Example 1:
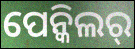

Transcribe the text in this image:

ପେନ୍କିଲର୍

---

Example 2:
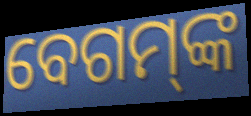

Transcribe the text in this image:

ବେଗମ୍‌ଙ୍କ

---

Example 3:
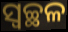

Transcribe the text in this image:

ସ୍ବଚ୍ଛଳ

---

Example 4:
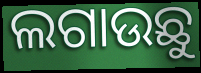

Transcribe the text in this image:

ଲଗାଉଛୁ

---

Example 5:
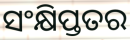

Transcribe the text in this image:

ସଂକ୍ଷିପ୍ତତର